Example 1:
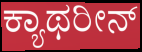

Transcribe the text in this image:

ಕ್ಯಾಥರೀನ್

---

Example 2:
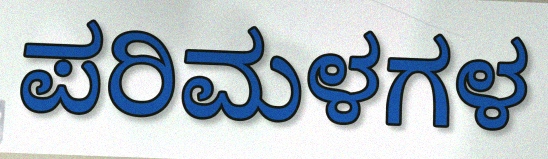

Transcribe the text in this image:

ಪರಿಮಳಗಳ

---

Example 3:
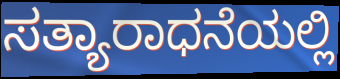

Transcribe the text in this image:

ಸತ್ಯಾರಾಧನೆಯಲ್ಲಿ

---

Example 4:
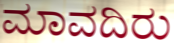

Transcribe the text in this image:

ಮಾವದಿರು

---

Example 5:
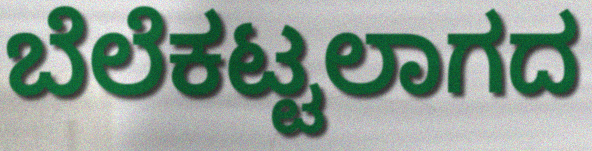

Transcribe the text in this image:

ಬೆಲೆಕಟ್ಟಲಾಗದ